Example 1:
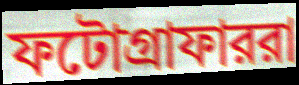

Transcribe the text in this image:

ফটোগ্রাফাররা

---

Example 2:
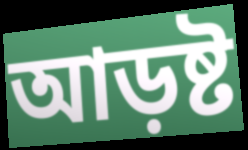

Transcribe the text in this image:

আড়ষ্ট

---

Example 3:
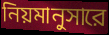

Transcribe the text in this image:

নিয়মানুসারে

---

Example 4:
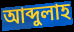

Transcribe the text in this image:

আব্দুলাহ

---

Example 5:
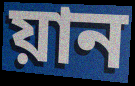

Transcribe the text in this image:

য়ান